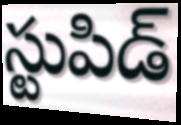
స్టుపిడ్